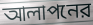
আলাপনের